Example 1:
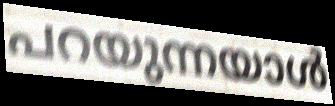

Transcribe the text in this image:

പറയുന്നയാൾ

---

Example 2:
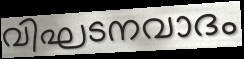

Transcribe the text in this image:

വിഘടനവാദം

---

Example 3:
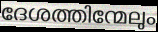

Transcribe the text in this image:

ദേശത്തിന്മേലും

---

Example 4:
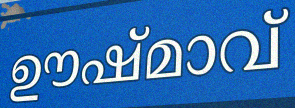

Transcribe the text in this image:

ഊഷ്മാവ്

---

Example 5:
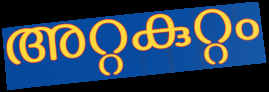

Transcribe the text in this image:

അറ്റകുറ്റം